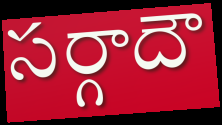
సర్గాదౌ